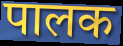
पालक